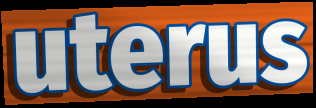
uterus